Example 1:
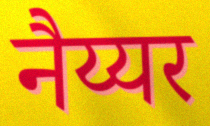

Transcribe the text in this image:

नैय्यर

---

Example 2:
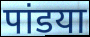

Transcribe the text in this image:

पांडया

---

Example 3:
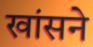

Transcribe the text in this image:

खांसने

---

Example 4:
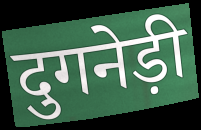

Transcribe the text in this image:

दुगनेड़ी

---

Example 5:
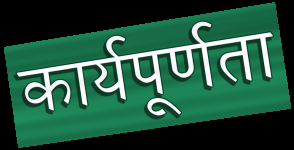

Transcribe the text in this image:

कार्यपूर्णता